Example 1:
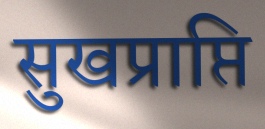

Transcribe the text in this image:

सुखप्राप्ति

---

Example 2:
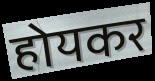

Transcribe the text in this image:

होयकर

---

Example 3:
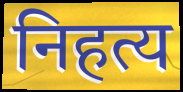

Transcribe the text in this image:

निहत्य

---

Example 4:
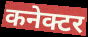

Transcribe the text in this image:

कनेक्टर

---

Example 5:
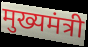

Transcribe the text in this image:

मुख्यमंत्री